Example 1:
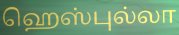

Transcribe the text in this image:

ஹெஸ்புல்லா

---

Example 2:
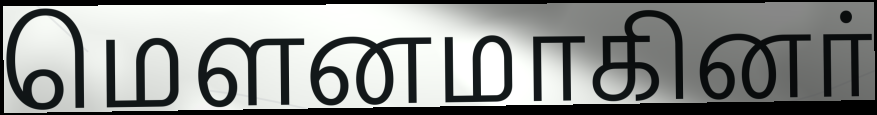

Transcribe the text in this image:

மௌனமாகினர்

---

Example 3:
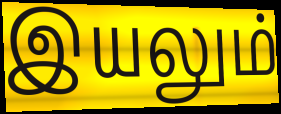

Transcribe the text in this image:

இயலும்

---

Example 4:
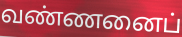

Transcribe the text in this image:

வண்ணனைப்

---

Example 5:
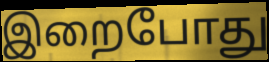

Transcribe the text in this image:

இறைபோது